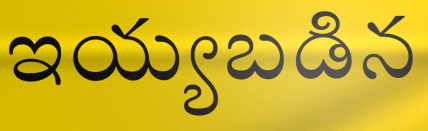
ఇయ్యబడిన